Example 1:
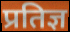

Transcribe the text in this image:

प्रतिज्ञ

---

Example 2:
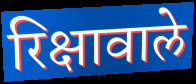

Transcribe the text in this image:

रिक्षावाले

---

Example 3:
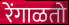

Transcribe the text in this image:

रेंगाळतो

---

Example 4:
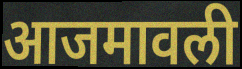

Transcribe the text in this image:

आजमावली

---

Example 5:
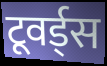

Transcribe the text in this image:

टूवर्ड्स